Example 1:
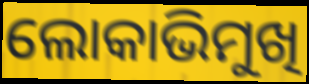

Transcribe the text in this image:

ଲୋକାଭିମୁଖି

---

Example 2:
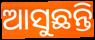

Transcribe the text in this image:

ଆସୁଛନ୍ତି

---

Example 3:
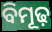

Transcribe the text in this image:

ବିମୂଢ଼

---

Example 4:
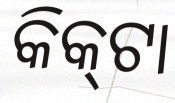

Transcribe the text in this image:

କିକ୍‍ଟା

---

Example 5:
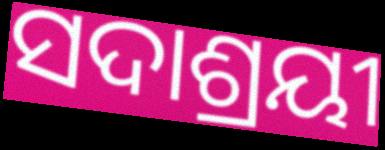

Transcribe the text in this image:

ସଦାଶ୍ରୟୀ